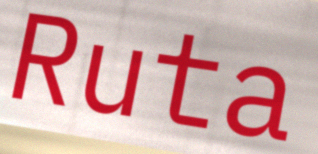
Ruta